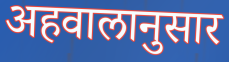
अहवालानुसार